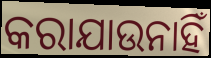
କରାଯାଉନାହିଁ